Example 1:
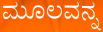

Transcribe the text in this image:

ಮೂಲವನ್ನ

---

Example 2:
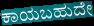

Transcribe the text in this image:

ಕಾಯಬಹುದೇ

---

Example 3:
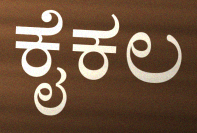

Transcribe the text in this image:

ಕೈಕಲ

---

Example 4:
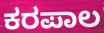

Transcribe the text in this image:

ಕರಪಾಲ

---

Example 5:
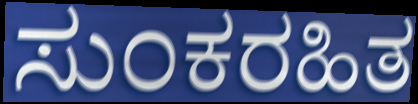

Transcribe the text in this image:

ಸುಂಕರಹಿತ